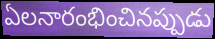
ఏలనారంభించినప్పుడు